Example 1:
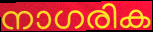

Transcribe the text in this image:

നാഗരിക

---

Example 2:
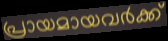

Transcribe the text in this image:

പ്രായമായവർക്ക്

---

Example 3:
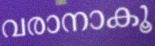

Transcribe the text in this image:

വരാനാകൂ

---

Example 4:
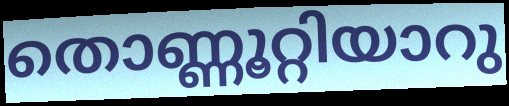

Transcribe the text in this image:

തൊണ്ണൂറ്റിയാറു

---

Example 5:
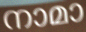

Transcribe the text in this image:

നാമാ